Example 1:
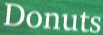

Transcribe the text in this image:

Donuts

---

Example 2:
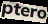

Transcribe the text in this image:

ptero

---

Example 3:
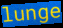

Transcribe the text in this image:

lunge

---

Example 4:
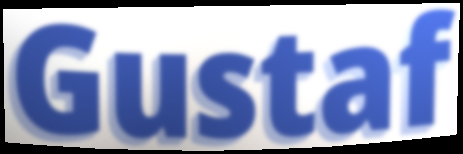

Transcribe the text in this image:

Gustaf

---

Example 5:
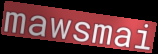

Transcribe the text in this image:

mawsmai